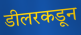
डीलरकडून